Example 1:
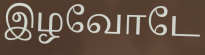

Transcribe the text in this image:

இழவோடே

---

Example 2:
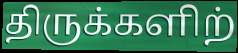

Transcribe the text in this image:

திருக்களிற்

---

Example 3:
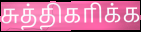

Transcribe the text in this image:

சுத்திகரிக்க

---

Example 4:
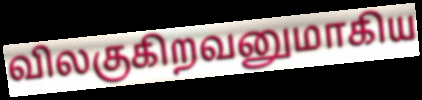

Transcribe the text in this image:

விலகுகிறவனுமாகிய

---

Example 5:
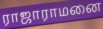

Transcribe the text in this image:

ராஜாராமனை